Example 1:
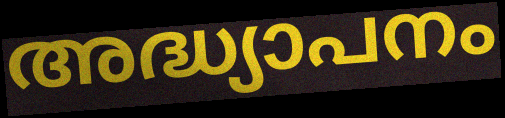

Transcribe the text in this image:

അദ്ധ്യാപനം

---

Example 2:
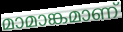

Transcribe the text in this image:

മാമാങ്കമാണ്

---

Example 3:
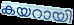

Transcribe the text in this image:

കയറായി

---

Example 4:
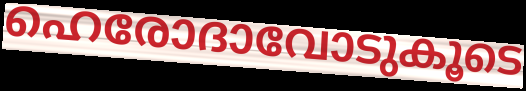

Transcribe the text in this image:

ഹെരോദാവോടുകൂടെ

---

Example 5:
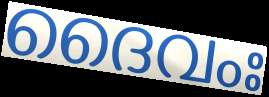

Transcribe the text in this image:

ദൈവംഃ